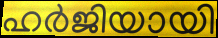
ഹർജിയായി